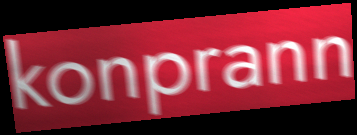
konprann